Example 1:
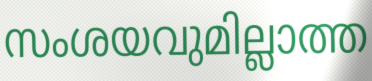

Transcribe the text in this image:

സംശയവുമില്ലാത്ത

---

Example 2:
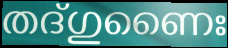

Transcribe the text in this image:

തദ്ഗുണൈഃ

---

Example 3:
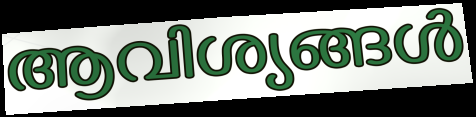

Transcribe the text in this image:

ആവിശ്യങ്ങൾ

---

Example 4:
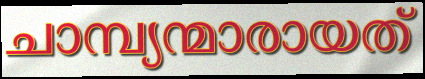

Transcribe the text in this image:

ചാമ്പ്യന്മാരായത്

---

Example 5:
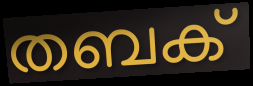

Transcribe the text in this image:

തബക്